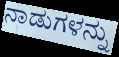
ನಾಡುಗಳನ್ನು